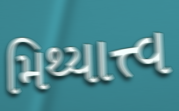
મિથ્યાત્ત્વ